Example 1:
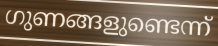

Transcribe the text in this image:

ഗുണങ്ങളുണ്ടെന്ന്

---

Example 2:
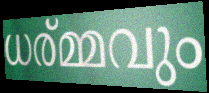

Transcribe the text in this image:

ധര്മ്മവും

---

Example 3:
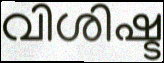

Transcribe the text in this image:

വിശിഷ്ട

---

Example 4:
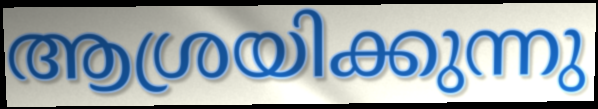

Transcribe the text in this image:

ആശ്രയിക്കുന്നു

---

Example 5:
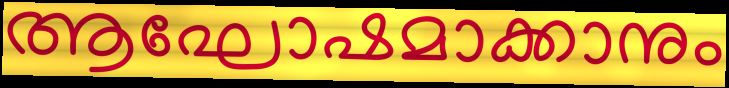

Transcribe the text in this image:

ആഘോഷമാക്കാനും